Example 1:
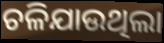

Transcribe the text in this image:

ଚଳିଯାଉଥିଲା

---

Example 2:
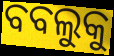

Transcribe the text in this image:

ବବଲୁକୁ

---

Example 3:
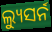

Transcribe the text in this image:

ଲ୍ୟୁସର୍ନ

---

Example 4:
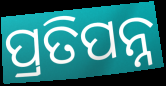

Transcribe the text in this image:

ପ୍ରତିପନ୍ନ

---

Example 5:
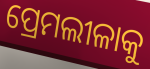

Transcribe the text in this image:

ପ୍ରେମଲୀଳାକୁ